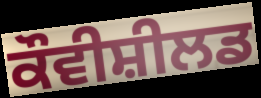
ਕੌਵੀਸ਼ੀਲਡ